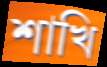
শাখি